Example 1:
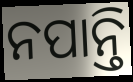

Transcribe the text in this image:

ନପାନ୍ତି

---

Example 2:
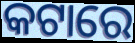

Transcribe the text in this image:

କଟାରେ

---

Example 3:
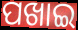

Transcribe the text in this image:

ପଖାଇ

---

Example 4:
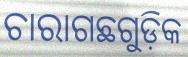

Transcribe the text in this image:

ଚାରାଗଛଗୁଡ଼ିକ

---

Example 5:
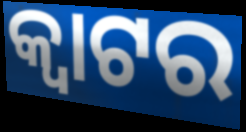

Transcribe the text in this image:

କ୍ୱାଟର